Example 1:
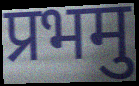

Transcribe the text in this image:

प्रभमु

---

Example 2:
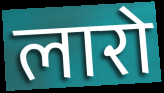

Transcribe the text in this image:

लारो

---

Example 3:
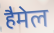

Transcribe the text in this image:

हैमेल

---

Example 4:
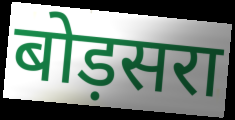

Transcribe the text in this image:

बोड़सरा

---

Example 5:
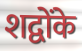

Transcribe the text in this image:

शद्वोंके